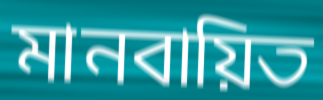
মানবায়িত